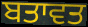
ਬਤਾਵਤ